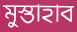
মুস্তাহাব